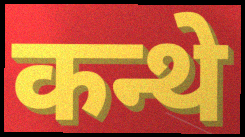
कन्थे